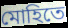
মোহিতে